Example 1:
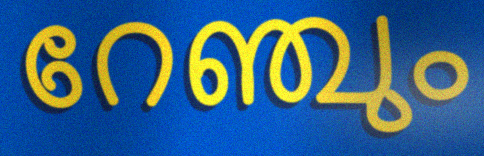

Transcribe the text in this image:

റേഞ്ചും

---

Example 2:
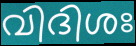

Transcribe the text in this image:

വിദിശഃ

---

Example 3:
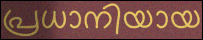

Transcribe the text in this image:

പ്രധാനിയായ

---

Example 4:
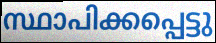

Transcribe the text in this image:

സ്ഥാപിക്കപ്പെട്ടു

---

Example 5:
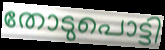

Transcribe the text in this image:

തോടുപൊട്ടി